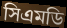
সিএমডি